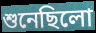
শুনেছিলো